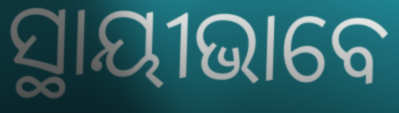
ସ୍ଥାୟୀଭାବେ